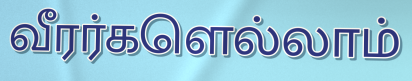
வீரர்களெல்லாம்